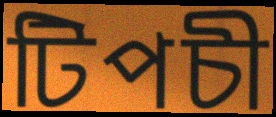
টিপচী